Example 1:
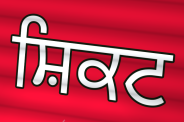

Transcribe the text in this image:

ਸ਼ਿਕਟ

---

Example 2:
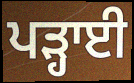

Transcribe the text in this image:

ਪੜ੍ਹਾਈ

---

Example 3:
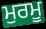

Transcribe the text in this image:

ਮੁਰਮੂ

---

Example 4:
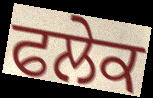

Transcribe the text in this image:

ਫਲੇਕ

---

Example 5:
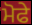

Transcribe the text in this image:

ਮੋਫੇ